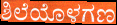
ಶಿಲೆಯೊಳಗಣ